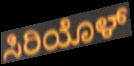
ಸಿರಿಯೊಳ್